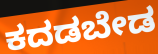
ಕದಡಬೇಡ